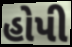
હોપી